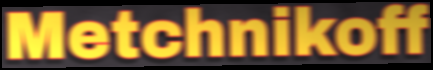
Metchnikoff